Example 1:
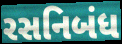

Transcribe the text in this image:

રસનિબંધ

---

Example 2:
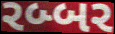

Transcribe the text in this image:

રબ્બર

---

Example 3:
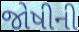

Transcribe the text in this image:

જોષીની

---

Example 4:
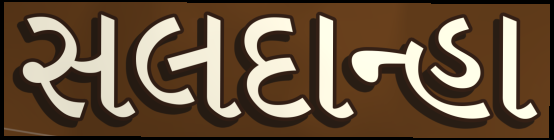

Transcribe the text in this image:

સલદાન્હા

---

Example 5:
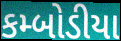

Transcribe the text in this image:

કમ્બોડીયા